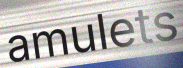
amulets